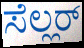
ಸೆಲ್ಲರ್